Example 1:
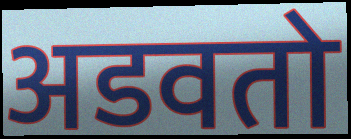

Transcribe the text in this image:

अडवतो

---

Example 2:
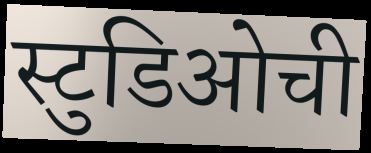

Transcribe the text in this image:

स्टुडिओची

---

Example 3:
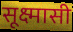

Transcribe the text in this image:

सूक्ष्मासी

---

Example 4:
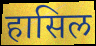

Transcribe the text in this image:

हासिल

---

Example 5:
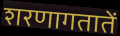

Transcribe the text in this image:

शरणागतातें